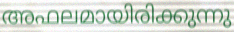
അഫലമായിരിക്കുന്നു